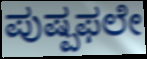
ಪುಷ್ಪಫಲೇ